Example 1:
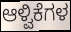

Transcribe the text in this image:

ಆಳ್ವಿಕೆಗಳ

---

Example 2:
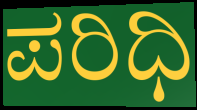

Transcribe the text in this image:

ಪರಿಧಿ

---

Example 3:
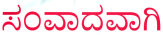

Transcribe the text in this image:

ಸಂವಾದವಾಗಿ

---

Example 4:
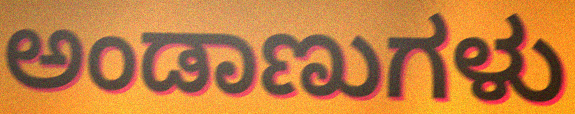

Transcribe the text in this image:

ಅಂಡಾಣುಗಳು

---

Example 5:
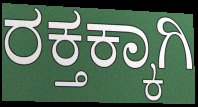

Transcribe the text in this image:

ರಕ್ತಕ್ಕಾಗಿ